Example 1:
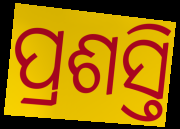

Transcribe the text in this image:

ପ୍ରଶସ୍ତି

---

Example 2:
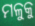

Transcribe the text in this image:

ମଳୁକୁ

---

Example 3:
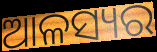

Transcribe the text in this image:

ଆଳସ୍ୟର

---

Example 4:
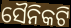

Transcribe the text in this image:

ସୈନିକଟି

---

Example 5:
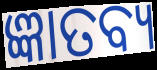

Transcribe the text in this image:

ଜ୍ଞାତବ୍ୟ